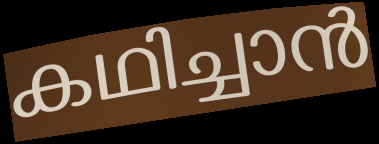
കഥിച്ചാൻ